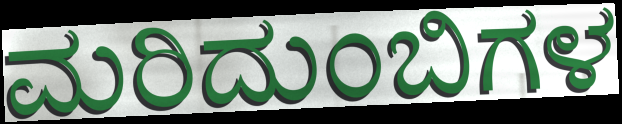
ಮರಿದುಂಬಿಗಳ